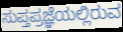
ಸುಪ್ತಪ್ರಜ್ಞೆಯಲ್ಲಿರುವ